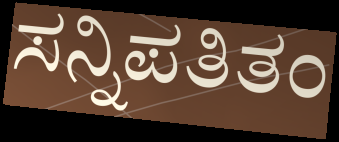
ಸನ್ನಿಪತಿತಂ